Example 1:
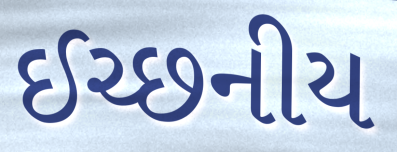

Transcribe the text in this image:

ઈચ્છનીય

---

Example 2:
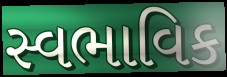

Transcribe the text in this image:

સ્વભાવિક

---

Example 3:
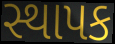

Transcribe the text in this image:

સ્થાપક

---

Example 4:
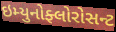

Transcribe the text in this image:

ઇમ્યુનોફ્લોરોસન્ટ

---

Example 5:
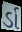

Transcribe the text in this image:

ર્ડા